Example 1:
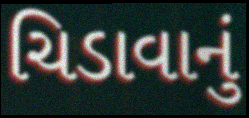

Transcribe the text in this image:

ચિડાવાનું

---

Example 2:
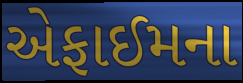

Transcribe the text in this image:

એફાઈમના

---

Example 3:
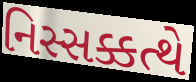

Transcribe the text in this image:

નિસ્સક્કત્થે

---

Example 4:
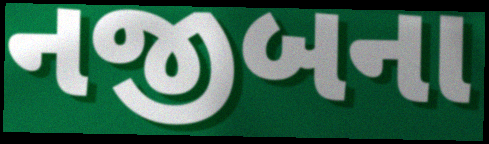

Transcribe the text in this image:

નજીબના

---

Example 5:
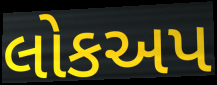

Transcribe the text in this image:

લોકઅપ